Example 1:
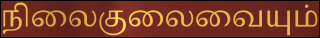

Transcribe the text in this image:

நிலைகுலைவையும்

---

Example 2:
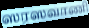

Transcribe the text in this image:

ஸரஸவாணி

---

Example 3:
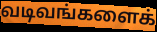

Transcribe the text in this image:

வடிவங்களைக்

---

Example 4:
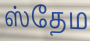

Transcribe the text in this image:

ஸ்தேம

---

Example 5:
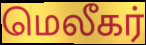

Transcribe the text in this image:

மெலீகர்